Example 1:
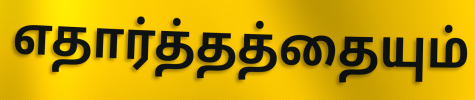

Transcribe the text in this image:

எதார்த்தத்தையும்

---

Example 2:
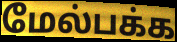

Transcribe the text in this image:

மேல்பக்க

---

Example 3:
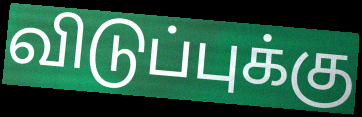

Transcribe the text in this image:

விடுப்புக்கு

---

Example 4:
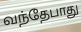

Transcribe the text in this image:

வந்தேபாது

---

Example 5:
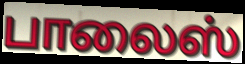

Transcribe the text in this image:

பாலைஸ்